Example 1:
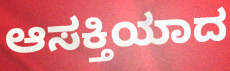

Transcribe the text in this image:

ಆಸಕ್ತಿಯಾದ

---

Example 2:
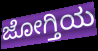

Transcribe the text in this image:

ಜೋಗ್ತಿಯ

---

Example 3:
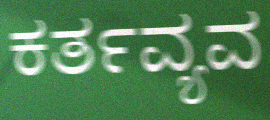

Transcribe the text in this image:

ಕರ್ತವ್ಯವ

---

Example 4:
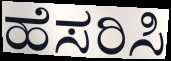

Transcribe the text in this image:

ಹೆಸರಿಸಿ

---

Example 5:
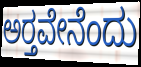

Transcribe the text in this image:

ಅರ‍್ತವೇನೆಂದು